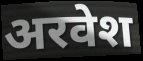
अरवेश